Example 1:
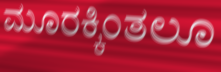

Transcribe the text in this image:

ಮೂರಕ್ಕಿಂತಲೂ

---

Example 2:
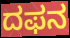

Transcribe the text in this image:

ದಫನ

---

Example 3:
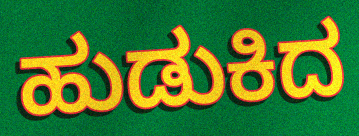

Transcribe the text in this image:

ಹುಡುಕಿದ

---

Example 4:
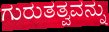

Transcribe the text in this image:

ಗುರುತತ್ವವನ್ನು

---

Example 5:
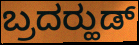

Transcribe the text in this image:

ಬ್ರದರ್‍ಹುಡ್